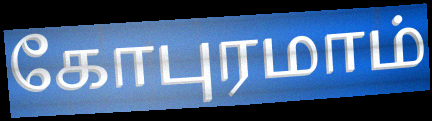
கோபுரமாம்